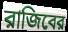
রাজিবের